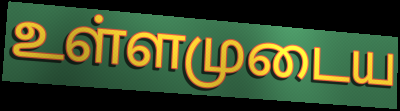
உள்ளமுடைய